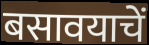
बसावयाचें